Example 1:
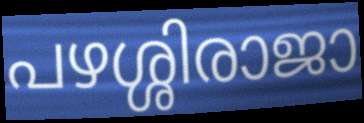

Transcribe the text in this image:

പഴശ്ശിരാജാ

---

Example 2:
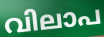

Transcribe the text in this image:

വിലാപ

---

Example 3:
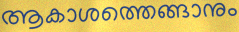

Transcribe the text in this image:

ആകാശത്തെങ്ങാനും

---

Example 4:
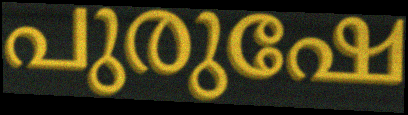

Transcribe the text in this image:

പുരുഷേ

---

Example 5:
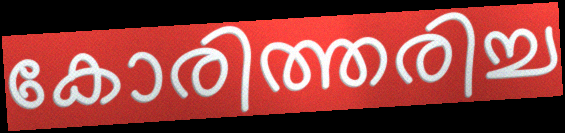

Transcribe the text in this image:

കോരിത്തരിച്ച